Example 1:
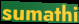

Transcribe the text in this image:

sumathi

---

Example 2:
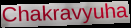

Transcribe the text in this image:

Chakravyuha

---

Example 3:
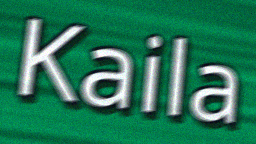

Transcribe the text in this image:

Kaila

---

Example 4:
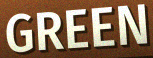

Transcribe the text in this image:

GREEN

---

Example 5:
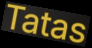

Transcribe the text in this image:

Tatas